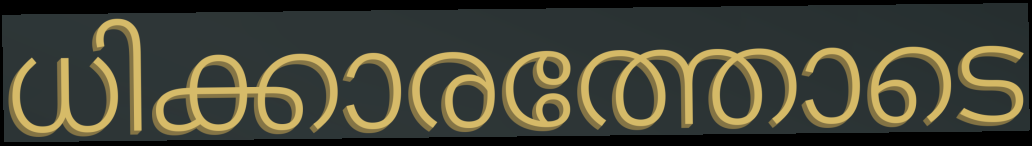
ധിക്കാരത്തോടെ